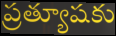
ప్రత్యూషకు